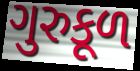
ગુરુકૂળ